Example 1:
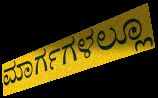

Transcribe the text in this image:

ಮಾರ್ಗಗಳಲ್ಲೂ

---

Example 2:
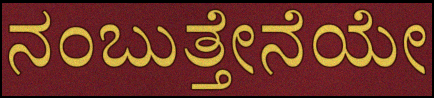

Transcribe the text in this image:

ನಂಬುತ್ತೇನೆಯೇ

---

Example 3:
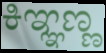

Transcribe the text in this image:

ಕಿಞ್ಞಣ್ಣ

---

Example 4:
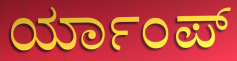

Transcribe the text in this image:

ರ್ಯಾಂಪ್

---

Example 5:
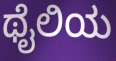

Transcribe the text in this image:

ಥೈಲಿಯ